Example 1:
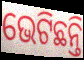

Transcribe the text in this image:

ଭେଟିଛନ୍ତି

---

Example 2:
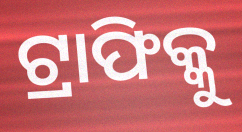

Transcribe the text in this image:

ଟ୍ରାଫିକ୍କୁ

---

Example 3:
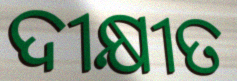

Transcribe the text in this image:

ଦୀକ୍ଷୀତ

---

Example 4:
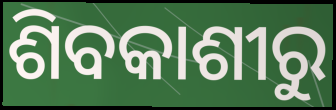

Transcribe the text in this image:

ଶିବକାଶୀରୁ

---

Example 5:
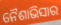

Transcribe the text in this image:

ନୈଶାଭିସାର